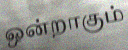
ஒன்றாகும்